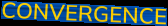
CONVERGENCE